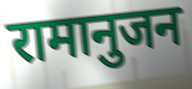
रामानुजन